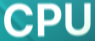
CPU